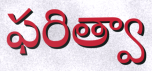
ఫరిత్వా